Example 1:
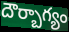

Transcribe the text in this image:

దౌర్బాగ్యం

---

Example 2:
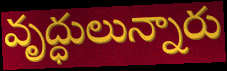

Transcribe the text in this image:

వృద్ధులున్నారు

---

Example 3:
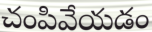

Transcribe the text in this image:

చంపివేయడం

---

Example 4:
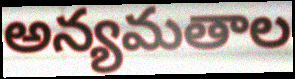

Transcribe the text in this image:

అన్యమతాల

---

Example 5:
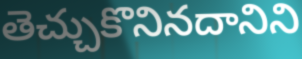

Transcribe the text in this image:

తెచ్చుకొనినదానిని